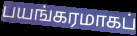
பயங்கரமாகப்